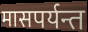
मासपर्यन्त